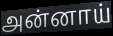
அன்னாய்